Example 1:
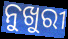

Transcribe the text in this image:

ନୁଖୁରୀ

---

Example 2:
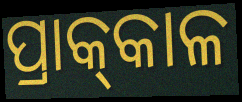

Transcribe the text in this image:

ପ୍ରାକ୍‌କାଳ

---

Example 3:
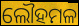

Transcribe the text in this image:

ଲୌହମଳ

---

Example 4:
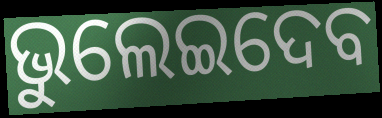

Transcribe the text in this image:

ଭୁଲେଇଦେବ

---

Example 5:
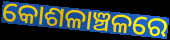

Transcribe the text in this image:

କୋଶଳାଞ୍ଚଳରେ